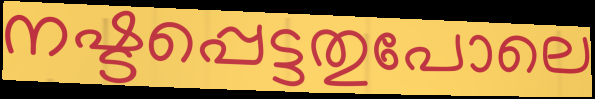
നഷ്ടപ്പെട്ടതുപോലെ